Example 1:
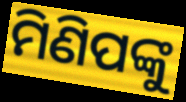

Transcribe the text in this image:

ମିଣିପଙ୍କୁ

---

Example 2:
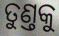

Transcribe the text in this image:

ତୁଣ୍ତକୁ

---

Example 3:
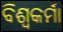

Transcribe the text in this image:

ବିଶ୍ବକର୍ମା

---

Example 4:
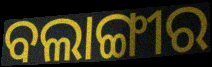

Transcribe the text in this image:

ବଲାଙ୍ଗୀର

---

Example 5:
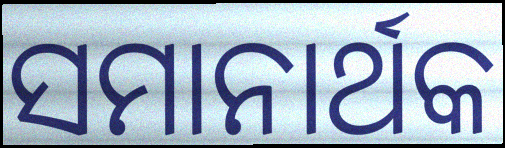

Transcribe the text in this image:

ସମାନାର୍ଥକ